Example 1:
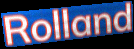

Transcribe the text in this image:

Rolland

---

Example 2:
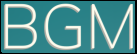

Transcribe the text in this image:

BGM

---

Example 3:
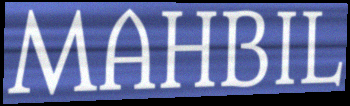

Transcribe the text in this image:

MAHBIL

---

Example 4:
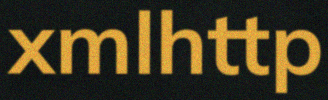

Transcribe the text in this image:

xmlhttp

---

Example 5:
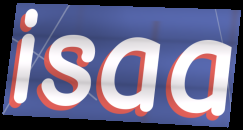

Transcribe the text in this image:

isaa